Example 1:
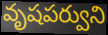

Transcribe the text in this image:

వృషపర్వుని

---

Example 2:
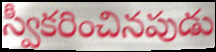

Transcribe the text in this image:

స్వీకరించినపుడు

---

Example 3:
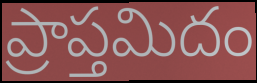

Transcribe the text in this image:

ప్రాప్తమిదం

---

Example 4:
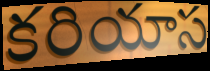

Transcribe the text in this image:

కరియాస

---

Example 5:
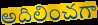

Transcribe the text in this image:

అదిలించగా